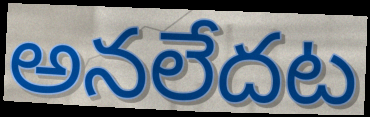
అనలేదట